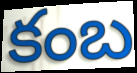
కంబ